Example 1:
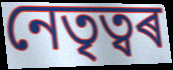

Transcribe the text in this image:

নেতৃত্বৰ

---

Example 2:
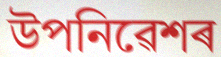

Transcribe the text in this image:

উপনিৱেশৰ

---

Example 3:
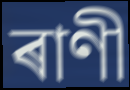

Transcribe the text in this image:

ৰাণী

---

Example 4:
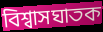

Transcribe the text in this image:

বিশ্বাসঘাতক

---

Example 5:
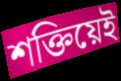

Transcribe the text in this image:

শক্তিয়েই